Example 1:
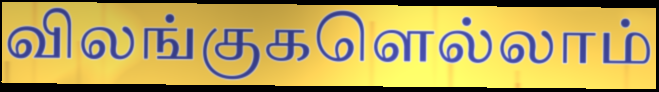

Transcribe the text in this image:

விலங்குகளெல்லாம்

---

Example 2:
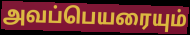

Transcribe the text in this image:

அவப்பெயரையும்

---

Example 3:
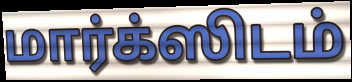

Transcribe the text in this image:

மார்க்ஸிடம்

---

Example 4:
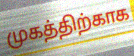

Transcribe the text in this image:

முகத்திற்காக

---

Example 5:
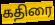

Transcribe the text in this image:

கதிரை